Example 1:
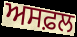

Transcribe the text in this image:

ਅਸਫ਼ਲ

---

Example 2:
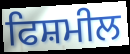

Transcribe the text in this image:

ਫਿਸ਼ਮੀਲ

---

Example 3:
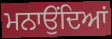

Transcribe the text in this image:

ਮਨਾਉਂਦਿਆਂ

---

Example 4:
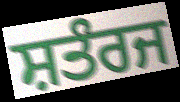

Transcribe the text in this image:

ਸ਼ਤੰਰਜ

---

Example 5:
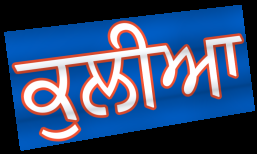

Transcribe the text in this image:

ਕੁਲੀਆ